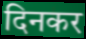
दिनकर